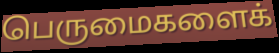
பெருமைகளைக்